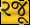
રજૂ